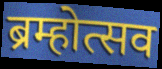
ब्रम्होत्सव